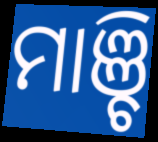
ମାଞ୍ଚି